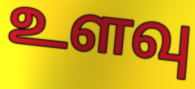
உளவு